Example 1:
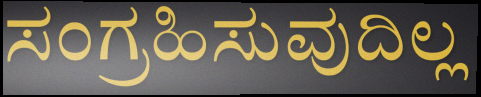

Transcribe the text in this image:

ಸಂಗ್ರಹಿಸುವುದಿಲ್ಲ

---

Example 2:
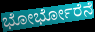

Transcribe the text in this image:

ಭೋರ್ಭೋರೆನೆ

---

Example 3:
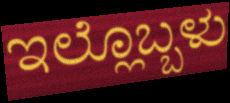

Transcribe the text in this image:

ಇಲ್ಲೊಬ್ಬಳು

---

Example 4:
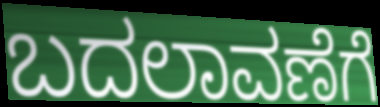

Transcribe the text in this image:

ಬದಲಾವಣೆಗೆ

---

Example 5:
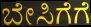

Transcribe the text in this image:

ಬೇಸಿಗೆಗೆ